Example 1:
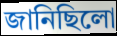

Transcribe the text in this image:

জানিছিলো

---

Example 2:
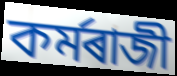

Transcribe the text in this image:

কৰ্মৰাজী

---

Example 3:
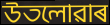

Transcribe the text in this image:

উতলোৱাৰ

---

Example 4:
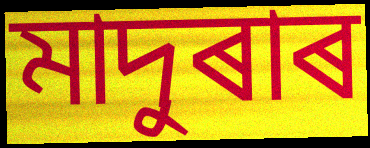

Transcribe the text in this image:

মাদুৰাৰ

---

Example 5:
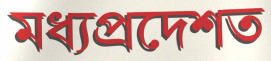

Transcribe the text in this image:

মধ্যপ্ৰদেশত